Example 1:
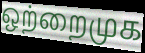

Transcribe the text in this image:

ஒற்றைமுக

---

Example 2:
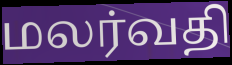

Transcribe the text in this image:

மலர்வதி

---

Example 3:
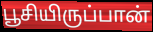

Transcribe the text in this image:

பூசியிருப்பான்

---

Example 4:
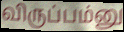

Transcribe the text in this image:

விருப்பம்னு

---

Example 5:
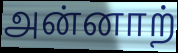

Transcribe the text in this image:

அன்னாற்